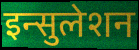
इन्सुलेशन